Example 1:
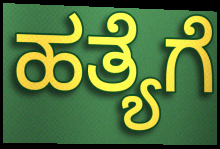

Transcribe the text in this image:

ಹತ್ಯೆಗೆ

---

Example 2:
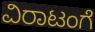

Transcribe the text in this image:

ವಿರಾಟಂಗೆ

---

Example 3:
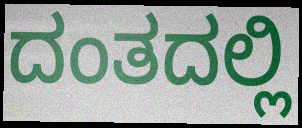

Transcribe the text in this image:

ದಂತದಲ್ಲಿ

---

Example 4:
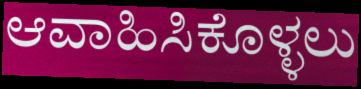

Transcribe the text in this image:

ಆವಾಹಿಸಿಕೊಳ್ಳಲು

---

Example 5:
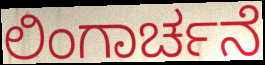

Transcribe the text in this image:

ಲಿಂಗಾರ್ಚನೆ